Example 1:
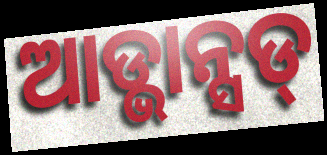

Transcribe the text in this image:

ଆଡ୍ଭାନ୍ସଡ୍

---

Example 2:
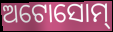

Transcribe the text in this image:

ଅଟୋସୋମ୍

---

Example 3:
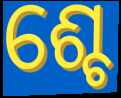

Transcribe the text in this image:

ଶ୍ଚେ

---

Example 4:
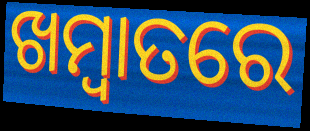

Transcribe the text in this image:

ଖମ୍ବାତରେ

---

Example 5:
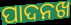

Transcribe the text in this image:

ପାଦନଖ